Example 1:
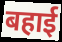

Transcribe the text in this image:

बहाई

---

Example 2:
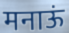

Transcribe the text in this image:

मनाऊं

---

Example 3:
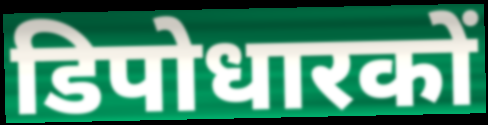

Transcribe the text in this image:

डिपोधारकों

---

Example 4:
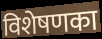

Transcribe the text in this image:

विशेषणका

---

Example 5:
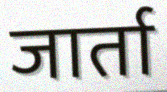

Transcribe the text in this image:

जार्ता